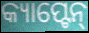
କ୍ୟାପ୍ଟେନ୍